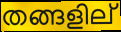
തങ്ങളില്